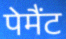
पेमैंट